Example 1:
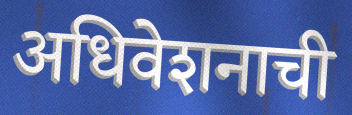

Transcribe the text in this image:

अधिवेशनाची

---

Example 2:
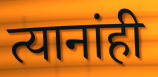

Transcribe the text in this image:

त्यानांही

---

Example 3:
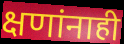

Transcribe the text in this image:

क्षणांनाही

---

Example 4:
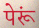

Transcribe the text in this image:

पेरूं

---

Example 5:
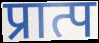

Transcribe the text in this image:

प्रात्प